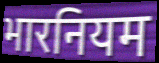
भारनियम